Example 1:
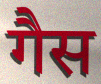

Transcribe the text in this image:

गैस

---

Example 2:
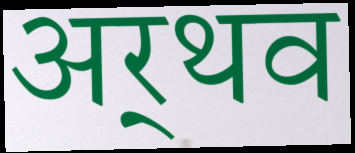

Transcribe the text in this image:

अर्थव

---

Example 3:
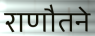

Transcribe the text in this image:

राणौतने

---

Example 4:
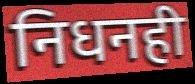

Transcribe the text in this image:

निधनही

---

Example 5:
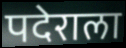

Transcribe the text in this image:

पदेराला